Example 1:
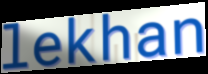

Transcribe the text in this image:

lekhan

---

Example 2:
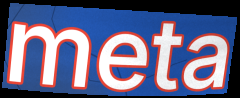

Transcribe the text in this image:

meta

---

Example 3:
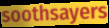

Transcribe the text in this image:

soothsayers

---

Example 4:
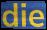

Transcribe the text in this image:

die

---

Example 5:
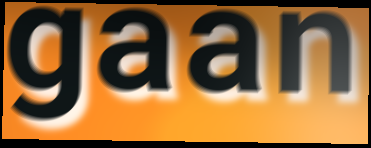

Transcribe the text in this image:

gaan